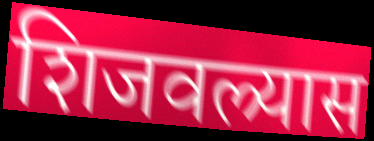
शिजवल्यास